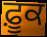
ਫ਼ੂਕ